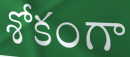
శోకంగా